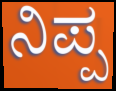
ನಿಪ್ಪ